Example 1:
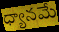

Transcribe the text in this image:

ధ్యానమే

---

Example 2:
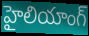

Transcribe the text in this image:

హైలియాంగ్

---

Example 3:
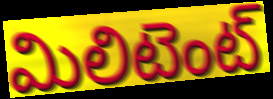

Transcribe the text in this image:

మిలిటెంట్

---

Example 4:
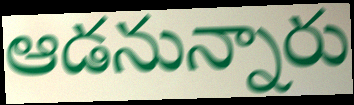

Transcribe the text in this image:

ఆడనున్నారు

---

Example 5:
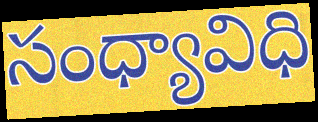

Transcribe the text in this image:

సంధ్యావిధి